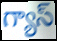
గ్యాస్